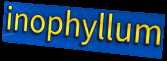
inophyllum